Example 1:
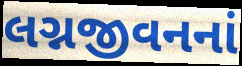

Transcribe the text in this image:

લગ્નજીવનનાં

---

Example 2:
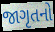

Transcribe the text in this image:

જાગૃતનો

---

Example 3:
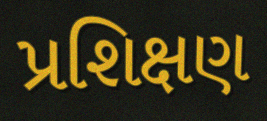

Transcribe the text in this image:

પ્રશિક્ષણ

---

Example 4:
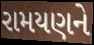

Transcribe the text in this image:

રામયણને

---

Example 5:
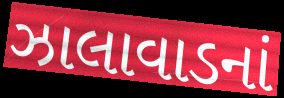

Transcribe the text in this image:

ઝાલાવાડનાં